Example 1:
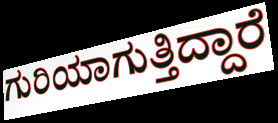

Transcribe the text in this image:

ಗುರಿಯಾಗುತ್ತಿದ್ದಾರೆ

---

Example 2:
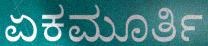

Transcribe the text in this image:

ಏಕಮೂರ್ತಿ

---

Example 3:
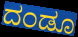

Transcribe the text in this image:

ದಂಡೂ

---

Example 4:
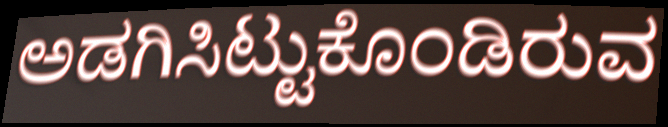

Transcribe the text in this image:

ಅಡಗಿಸಿಟ್ಟುಕೊಂಡಿರುವ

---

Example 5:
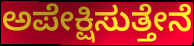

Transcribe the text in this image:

ಅಪೇಕ್ಷಿಸುತ್ತೇನೆ